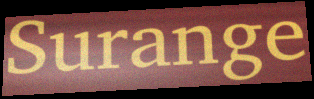
Surange